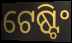
ଟେଷ୍ଟିଂ